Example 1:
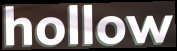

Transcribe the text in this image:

hollow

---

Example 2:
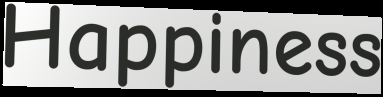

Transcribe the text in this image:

Happiness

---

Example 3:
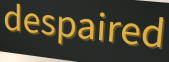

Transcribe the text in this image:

despaired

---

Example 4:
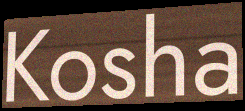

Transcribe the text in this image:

Kosha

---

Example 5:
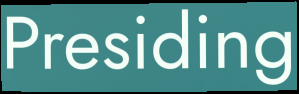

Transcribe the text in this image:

Presiding